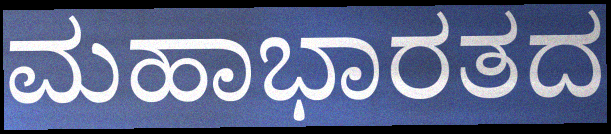
ಮಹಾಭಾರತದ